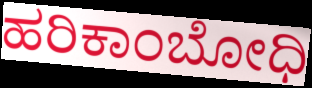
ಹರಿಕಾಂಬೋಧಿ